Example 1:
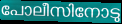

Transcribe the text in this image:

പോലീസിനോടു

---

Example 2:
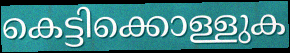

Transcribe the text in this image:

കെട്ടിക്കൊള്ളുക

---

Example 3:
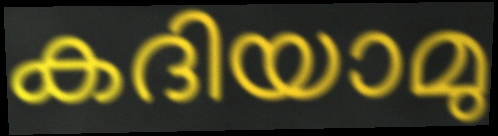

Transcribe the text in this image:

കദിയാമു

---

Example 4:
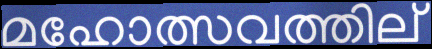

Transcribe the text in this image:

മഹോത്സവത്തില്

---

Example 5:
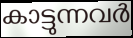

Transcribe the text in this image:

കാട്ടുന്നവർ